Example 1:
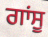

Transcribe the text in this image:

ਗਾਂਸੂ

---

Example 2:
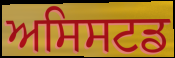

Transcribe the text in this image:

ਅਸਿਸਟਡ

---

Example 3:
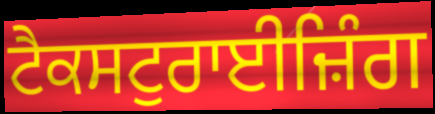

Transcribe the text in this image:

ਟੈਕਸਟੁਰਾਈਜ਼ਿੰਗ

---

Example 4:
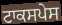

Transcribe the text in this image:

ਟਾਕਸਪੇਸ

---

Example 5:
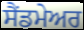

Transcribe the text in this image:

ਸੈਂਡਮੇਅਰ